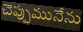
చెప్పుమునేను